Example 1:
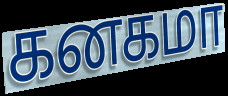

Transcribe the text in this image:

கனகமா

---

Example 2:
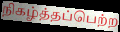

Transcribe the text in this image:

நிகழ்த்தப்பெற்ற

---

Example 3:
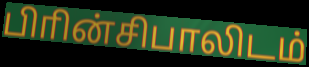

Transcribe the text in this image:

பிரின்சிபாலிடம்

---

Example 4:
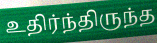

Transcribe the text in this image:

உதிர்ந்திருந்த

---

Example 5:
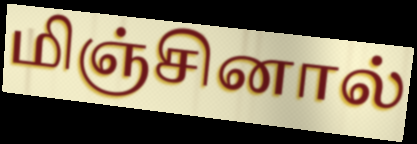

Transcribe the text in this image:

மிஞ்சினால்